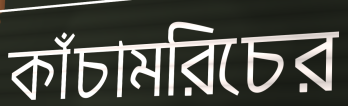
কাঁচামরিচের